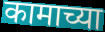
कामाच्या